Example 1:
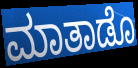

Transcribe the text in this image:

ಮಾತಾಡೊ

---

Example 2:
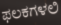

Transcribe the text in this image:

ಫಲಕಗಳಲಿ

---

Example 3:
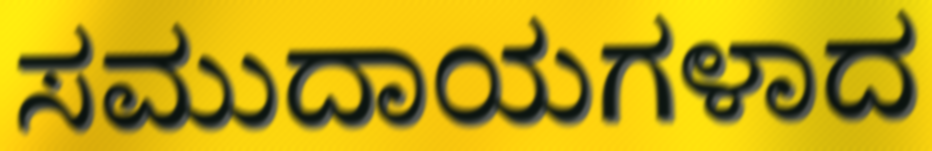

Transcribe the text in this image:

ಸಮುದಾಯಗಳಾದ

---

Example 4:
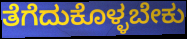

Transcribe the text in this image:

ತೆಗೆದುಕೊಳ್ಳಬೇಕು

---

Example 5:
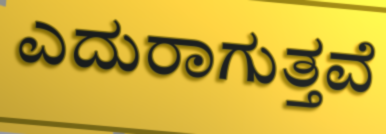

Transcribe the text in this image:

ಎದುರಾಗುತ್ತವೆ